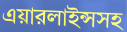
এয়ারলাইন্সসহ